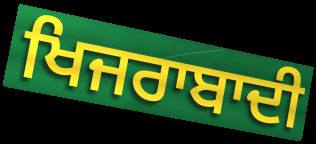
ਖਿਜਰਾਬਾਦੀ